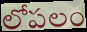
లోపలం